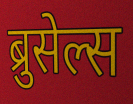
ब्रुसेल्स